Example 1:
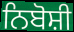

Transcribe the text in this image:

ਨਿਬੋਸ਼ੀ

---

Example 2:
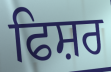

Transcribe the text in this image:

ਫਿਸ਼ਰ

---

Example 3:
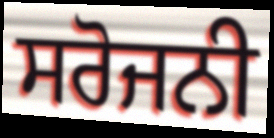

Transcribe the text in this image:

ਸਰੋਜਨੀ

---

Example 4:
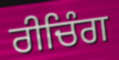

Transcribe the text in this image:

ਰੀਚਿੰਗ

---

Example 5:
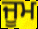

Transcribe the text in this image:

ਜੂਮ